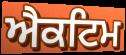
ਐਕਟਿਮ